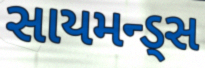
સાયમન્ડ્સ